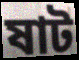
ষাট